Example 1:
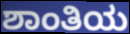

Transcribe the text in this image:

ಶಾಂತಿಯ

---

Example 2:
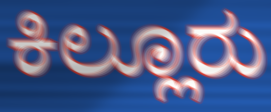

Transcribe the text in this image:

ಕಿಲ್ಲೂರು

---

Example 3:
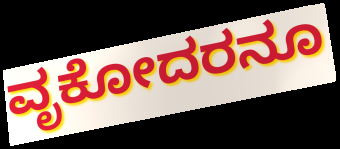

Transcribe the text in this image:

ವೃಕೋದರನೂ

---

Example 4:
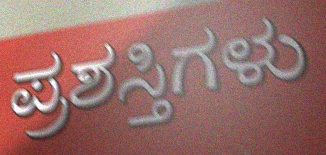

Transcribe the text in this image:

ಪ್ರಶಸ್ತಿಗಳು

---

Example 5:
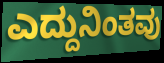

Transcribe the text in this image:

ಎದ್ದುನಿಂತವು